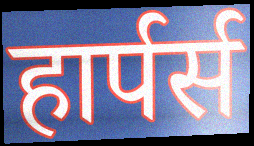
हार्पर्स